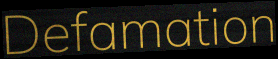
Defamation